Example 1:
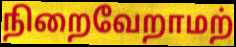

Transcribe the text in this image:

நிறைவேறாமற்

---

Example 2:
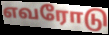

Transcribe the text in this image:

எவரோடு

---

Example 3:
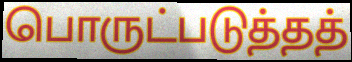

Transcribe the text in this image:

பொருட்படுத்தத்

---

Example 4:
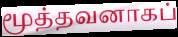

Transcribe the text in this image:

மூத்தவனாகப்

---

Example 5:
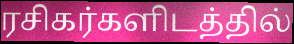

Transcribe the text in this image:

ரசிகர்களிடத்தில்